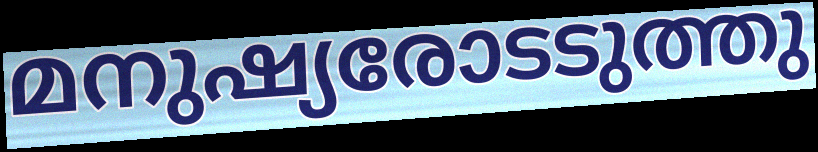
മനുഷ്യരോടടുത്തു